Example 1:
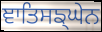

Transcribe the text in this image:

ਞਾਤਿਸਙ੍ਘੇਨ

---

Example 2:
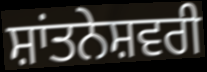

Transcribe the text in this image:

ਸ਼ਾਂਤਨੇਸ਼ਵਰੀ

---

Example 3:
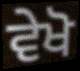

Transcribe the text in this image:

ਵੇਖੋ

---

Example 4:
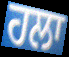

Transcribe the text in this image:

ਹਲਾ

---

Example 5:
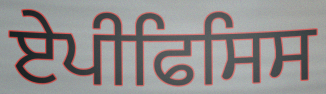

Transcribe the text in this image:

ਏਪੀਫਿਸਿਸ